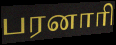
பரனாரி